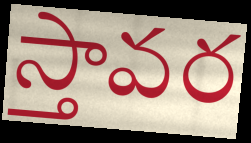
స్తావర